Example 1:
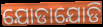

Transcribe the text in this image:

ଯୋଡାଯୋଡି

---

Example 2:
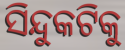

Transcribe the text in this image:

ସିନ୍ଦୁକଟିକୁ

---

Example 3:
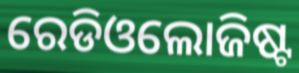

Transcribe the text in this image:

ରେଡିଓଲୋଜିଷ୍ଟ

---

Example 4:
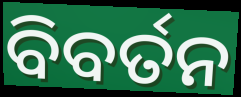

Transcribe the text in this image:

ବିବର୍ତନ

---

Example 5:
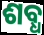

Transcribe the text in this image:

ଶବ୍ଧ